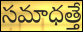
సమాధత్తే